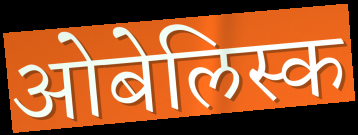
ओबेलिस्क